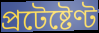
প্ৰটেষ্টেণ্ট